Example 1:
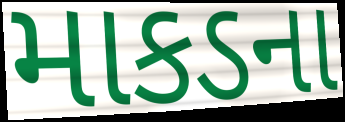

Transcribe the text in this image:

માકડના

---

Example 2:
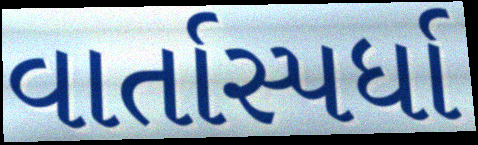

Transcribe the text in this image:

વાર્તાસ્પર્ધા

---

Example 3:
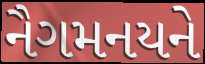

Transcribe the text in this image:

નૈગમનયને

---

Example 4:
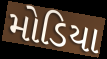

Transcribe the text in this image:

મોડિયા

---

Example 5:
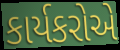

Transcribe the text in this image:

કાર્યકરોએ